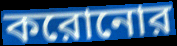
করোনোর